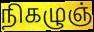
நிகழுஞ்